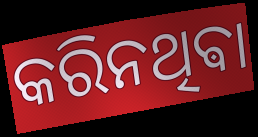
କରିନଥିଵା